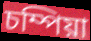
চম্পিয়া